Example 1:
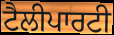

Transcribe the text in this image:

ਟੈਲੀਪਾਰਟੀ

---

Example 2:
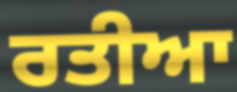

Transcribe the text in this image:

ਰਤੀਆ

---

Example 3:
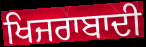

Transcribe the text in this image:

ਖਿਜਰਾਬਾਦੀ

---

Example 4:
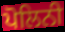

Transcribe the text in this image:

ਪੋਲਿਨੀ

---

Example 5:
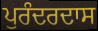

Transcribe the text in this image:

ਪੁਰੰਦਰਦਾਸ